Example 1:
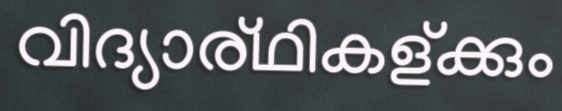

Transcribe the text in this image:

വിദ്യാര്ഥികള്ക്കും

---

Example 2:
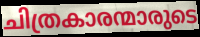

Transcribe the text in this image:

ചിത്രകാരന്മാരുടെ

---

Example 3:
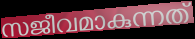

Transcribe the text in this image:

സജീവമാകുന്നത്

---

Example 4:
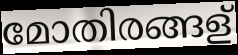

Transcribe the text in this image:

മോതിരങ്ങള്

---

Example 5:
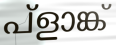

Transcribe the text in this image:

പ്ളാങ്ക്